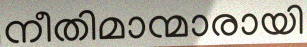
നീതിമാന്മാരായി